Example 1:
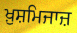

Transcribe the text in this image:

ਖ਼ੁਸ਼ਮਿਜਾਜ਼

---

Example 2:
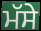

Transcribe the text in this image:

ਮੱਸੇ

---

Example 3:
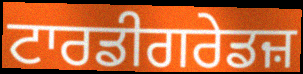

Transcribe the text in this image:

ਟਾਰਡੀਗਰੇਡਜ਼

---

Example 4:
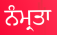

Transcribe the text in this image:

ਨੰਮ੍ਰਤਾ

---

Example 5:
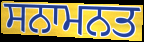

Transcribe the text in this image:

ਸਨਾਮਨਤ